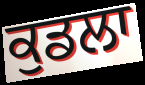
ਕੁਡਲਾ